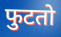
फुटतो